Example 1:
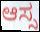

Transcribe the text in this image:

ಆಸ್ಸ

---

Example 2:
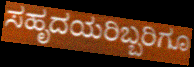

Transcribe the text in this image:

ಸಹೃದಯರಿಬ್ಬರಿಗೂ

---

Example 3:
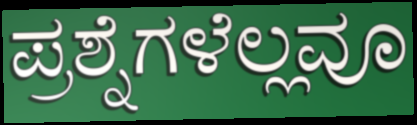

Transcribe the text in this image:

ಪ್ರಶ್ನೆಗಳೆಲ್ಲವೂ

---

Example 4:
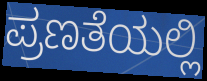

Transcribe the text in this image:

ಪ್ರಣತೆಯಲ್ಲಿ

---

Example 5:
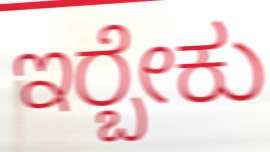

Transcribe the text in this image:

ಇರ‍್ಬೇಕು